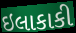
ઇલાકાકી